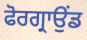
ਫੋਰਗ੍ਰਾਉਂਡ